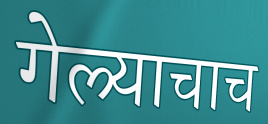
गेल्याचाच